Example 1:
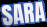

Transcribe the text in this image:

SARA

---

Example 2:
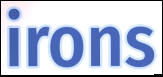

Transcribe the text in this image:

irons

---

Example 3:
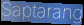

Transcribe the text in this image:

Saptarang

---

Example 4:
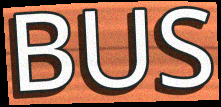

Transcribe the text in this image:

BUS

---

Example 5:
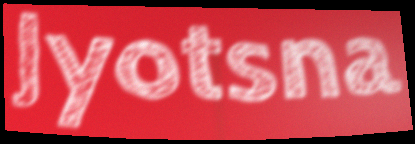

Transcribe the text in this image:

Jyotsna